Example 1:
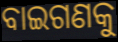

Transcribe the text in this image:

ବାଇଗଣକୁ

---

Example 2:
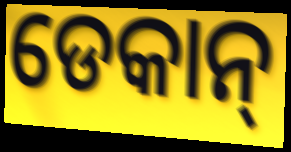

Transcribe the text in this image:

ଡେକାନ୍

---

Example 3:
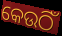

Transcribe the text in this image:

କେଉଠିଁ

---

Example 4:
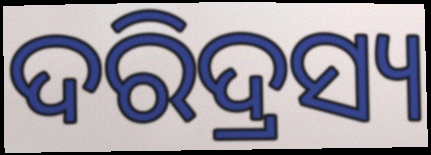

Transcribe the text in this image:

ଦରିଦ୍ରସ୍ୟ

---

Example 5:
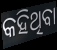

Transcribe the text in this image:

କହିଥିବା